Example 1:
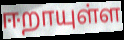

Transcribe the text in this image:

ஈறாயுள்ள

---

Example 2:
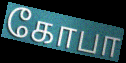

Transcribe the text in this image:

கோபா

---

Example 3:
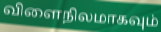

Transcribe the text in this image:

விளைநிலமாகவும்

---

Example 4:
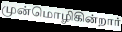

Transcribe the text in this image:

முன்மொழிகின்றார்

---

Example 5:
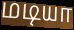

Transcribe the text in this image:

மடியா